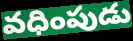
వధింపుడు